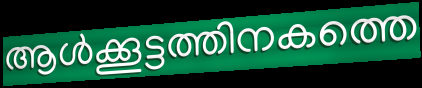
ആൾക്കൂട്ടത്തിനകത്തെ